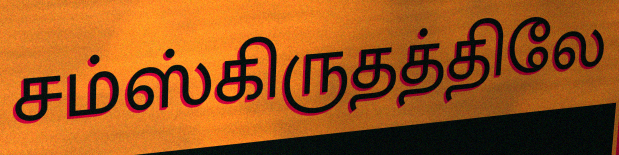
சம்ஸ்கிருதத்திலே